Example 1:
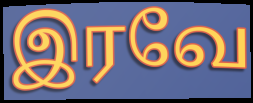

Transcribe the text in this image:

இரவே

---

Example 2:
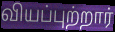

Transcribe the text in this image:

வியப்புற்றார்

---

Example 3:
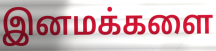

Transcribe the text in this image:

இனமக்களை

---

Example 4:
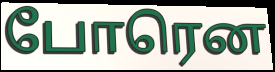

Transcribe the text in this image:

போரென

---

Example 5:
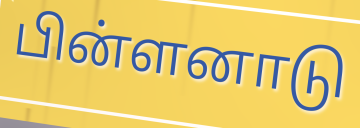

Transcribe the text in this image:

பின்ளனாடு